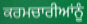
ਕਰਮਚਾਰੀਆਂਨੂੰ